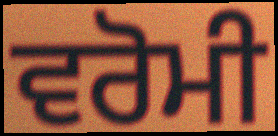
ਵਰੋਮੀ